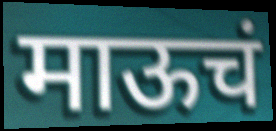
माऊचं